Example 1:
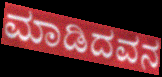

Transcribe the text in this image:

ಮಾಡಿದವನ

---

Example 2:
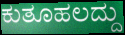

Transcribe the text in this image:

ಕುತೂಹಲದ್ದು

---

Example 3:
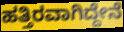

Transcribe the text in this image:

ಹತ್ತಿರವಾಗಿದ್ದೇನೆ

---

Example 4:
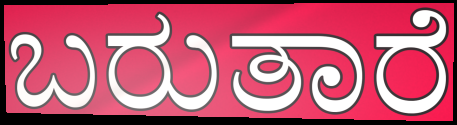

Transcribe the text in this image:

ಬರುತಾರೆ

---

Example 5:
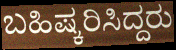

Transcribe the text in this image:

ಬಹಿಷ್ಕರಿಸಿದ್ದರು